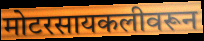
मोटरसायकलीवरून